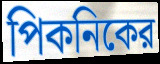
পিকনিকের